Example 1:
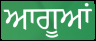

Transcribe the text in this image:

ਆਗੂਆਂ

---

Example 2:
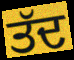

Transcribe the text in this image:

ਤੱਦ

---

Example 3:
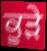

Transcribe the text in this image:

ਕੂਡ਼ੇ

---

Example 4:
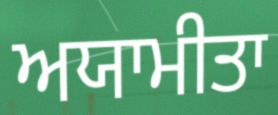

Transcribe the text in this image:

ਅਯਾਮੀਤਾ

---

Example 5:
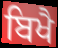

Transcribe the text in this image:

ਬਿਖੈ